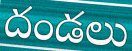
దండలు